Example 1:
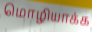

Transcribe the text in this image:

மொழியாக்க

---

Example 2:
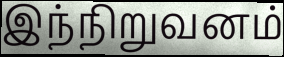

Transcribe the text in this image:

இந்நிறுவனம்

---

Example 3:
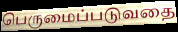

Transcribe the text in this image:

பெருமைப்படுவதை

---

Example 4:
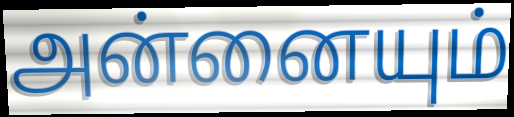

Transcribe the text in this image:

அன்னையும்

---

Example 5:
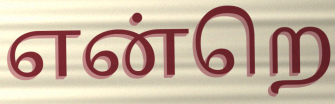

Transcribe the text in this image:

என்றெ